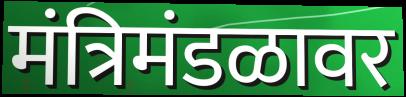
मंत्रिमंडळावर